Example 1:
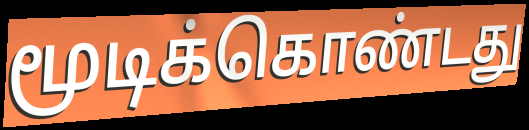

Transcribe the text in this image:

மூடிக்கொண்டது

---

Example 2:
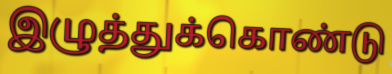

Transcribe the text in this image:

இழுத்துக்கொண்டு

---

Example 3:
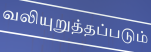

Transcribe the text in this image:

வலியுறுத்தப்படும்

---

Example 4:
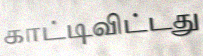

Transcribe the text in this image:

காட்டிவிட்டது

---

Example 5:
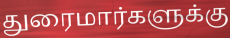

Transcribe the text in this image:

துரைமார்களுக்கு